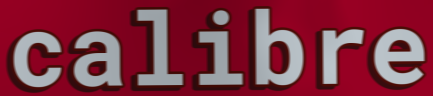
calibre